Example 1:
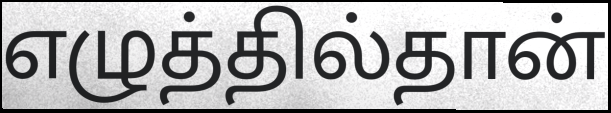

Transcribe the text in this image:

எழுத்தில்தான்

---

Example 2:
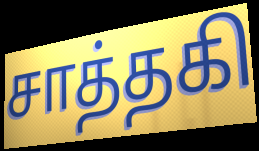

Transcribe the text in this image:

சாத்தகி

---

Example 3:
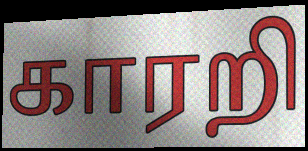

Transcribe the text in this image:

காரறி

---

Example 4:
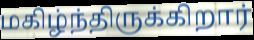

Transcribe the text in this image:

மகிழ்ந்திருக்கிறார்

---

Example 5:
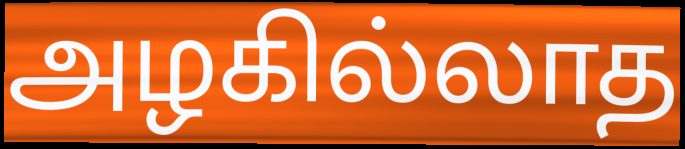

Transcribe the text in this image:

அழகில்லாத